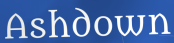
Ashdown